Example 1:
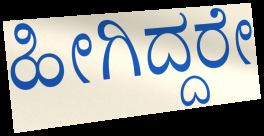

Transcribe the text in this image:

ಹೀಗಿದ್ದರೇ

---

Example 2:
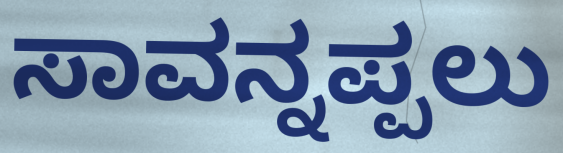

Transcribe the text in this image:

ಸಾವನ್ನಪ್ಪಲು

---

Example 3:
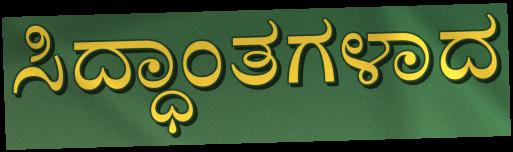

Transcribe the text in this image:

ಸಿದ್ಧಾಂತಗಳಾದ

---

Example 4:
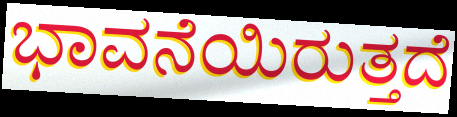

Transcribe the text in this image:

ಭಾವನೆಯಿರುತ್ತದೆ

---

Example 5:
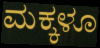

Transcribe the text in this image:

ಮಕ್ಕಳೂ